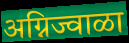
अग्निज्वाळा